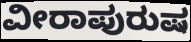
ವೀರಾಪುರುಷ